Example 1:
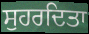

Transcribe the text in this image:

ਸੁਹਰਦਿਤਾ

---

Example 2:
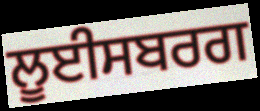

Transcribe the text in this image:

ਲੂਈਸਬਰਗ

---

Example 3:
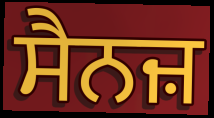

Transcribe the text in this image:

ਸੈਨਜ਼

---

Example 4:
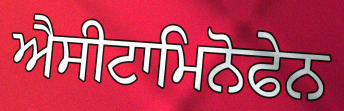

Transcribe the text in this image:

ਐਸੀਟਾਮਿਨੋਫੇਨ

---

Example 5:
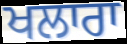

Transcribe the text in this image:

ਖਲਾਰਾ